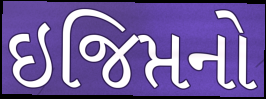
ઇજિપ્તનો